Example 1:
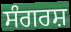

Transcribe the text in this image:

ਸੰਗਰਸ਼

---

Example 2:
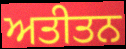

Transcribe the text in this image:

ਅਤੀਤਨ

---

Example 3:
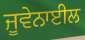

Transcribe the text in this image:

ਜੂਵੇਨਾਈਲ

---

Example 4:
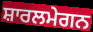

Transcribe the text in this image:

ਸ਼ਾਰਲਮੇਗਨ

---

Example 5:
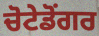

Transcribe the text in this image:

ਚੋਟੇਡੋਂਗਰ